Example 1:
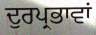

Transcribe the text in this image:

ਦੁਰਪ੍ਰਭਾਵਾਂ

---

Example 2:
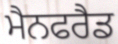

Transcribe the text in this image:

ਮੈਨਫਰੈਡ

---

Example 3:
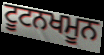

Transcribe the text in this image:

ਟੂਟਨਖਮੂਨ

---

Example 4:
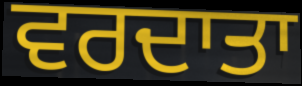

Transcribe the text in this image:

ਵਰਦਾਤਾ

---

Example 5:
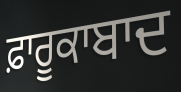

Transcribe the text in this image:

ਫ਼ਾਰੂਕਾਬਾਦ